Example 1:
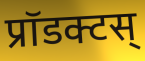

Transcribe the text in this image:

प्रॉडक्टस्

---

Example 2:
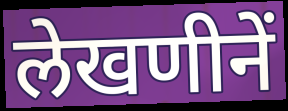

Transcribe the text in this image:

लेखणीनें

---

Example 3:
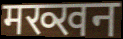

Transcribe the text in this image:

मख्खन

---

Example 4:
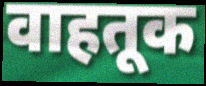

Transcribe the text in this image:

वाहतूक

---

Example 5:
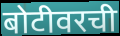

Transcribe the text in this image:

बोटीवरची